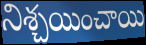
నిశ్చయించాయి